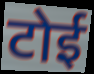
टोई